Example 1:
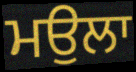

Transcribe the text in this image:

ਮਉਲਾ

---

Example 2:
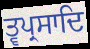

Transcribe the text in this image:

ਤ੍ਵਪ੍ਰਸਾਦਿ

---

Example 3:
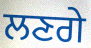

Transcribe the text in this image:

ਲਣਗੇ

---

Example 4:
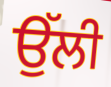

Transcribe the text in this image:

ਉੱਲੀ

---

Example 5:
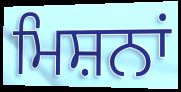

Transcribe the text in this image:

ਮਿਸ਼ਨਾਂ